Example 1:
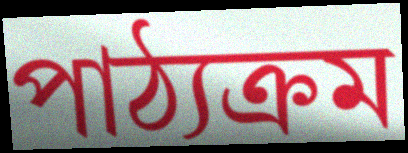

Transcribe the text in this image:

পাঠ্য়ক্ৰম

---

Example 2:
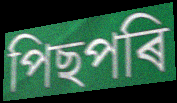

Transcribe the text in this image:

পিছপৰি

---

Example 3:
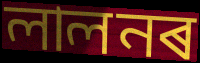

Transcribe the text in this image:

লালনৰ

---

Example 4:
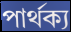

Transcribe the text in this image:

পাৰ্থক্য়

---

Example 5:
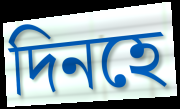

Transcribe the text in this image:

দিনহে